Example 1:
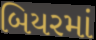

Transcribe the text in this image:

બિયરમાં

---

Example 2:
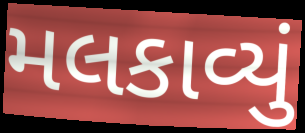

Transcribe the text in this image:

મલકાવ્યું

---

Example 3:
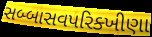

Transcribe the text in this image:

સબ્બાસવપરિક્ખીણા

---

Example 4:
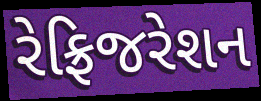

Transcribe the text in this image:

રેફ્રિજરેશન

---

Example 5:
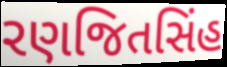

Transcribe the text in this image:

રણજિતસિંહ